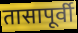
तासापूर्वी